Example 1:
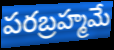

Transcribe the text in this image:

పరబ్రహ్మమే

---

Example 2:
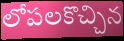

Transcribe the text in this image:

లోపలకొచ్చిన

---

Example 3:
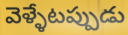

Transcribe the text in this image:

వెళ్ళేటప్పుడు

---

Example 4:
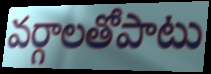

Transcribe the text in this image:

వర్గాలతోపాటు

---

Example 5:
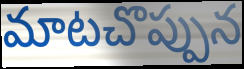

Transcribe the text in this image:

మాటచొప్పున